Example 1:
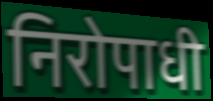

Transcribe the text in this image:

निरोपाधी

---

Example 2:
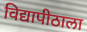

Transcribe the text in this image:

विद्यापीठाला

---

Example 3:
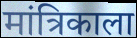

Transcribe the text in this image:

मांत्रिकाला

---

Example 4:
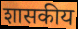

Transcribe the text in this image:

शासकीय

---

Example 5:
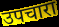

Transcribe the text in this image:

उपचारा